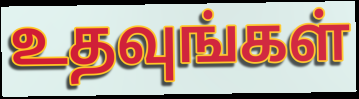
உதவுங்கள்